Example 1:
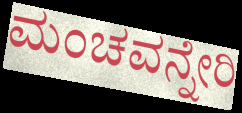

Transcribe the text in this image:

ಮಂಚವನ್ನೇರಿ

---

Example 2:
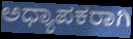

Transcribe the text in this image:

ಅಧ್ಯಾಪಕರಾಗಿ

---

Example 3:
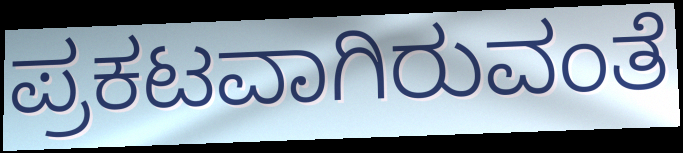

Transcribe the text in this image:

ಪ್ರಕಟವಾಗಿರುವಂತೆ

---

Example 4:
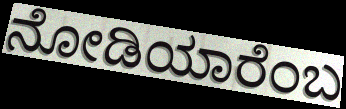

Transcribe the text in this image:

ನೋಡಿಯಾರೆಂಬ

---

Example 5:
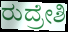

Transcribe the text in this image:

ರುದ್ರೇಶಿ